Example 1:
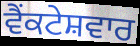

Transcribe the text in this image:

ਵੈਂਕਟੇਸ਼ਵਾਰ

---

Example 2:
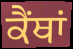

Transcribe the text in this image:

ਕੈਂਥਾਂ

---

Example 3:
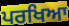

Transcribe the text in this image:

ਪਰਖਿਆ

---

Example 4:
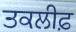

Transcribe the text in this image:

ਤਕਲੀਫ਼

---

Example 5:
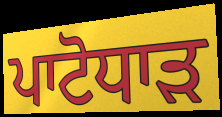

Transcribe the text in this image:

ਪਾਟੋਧਾੜ